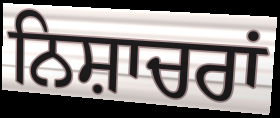
ਨਿਸ਼ਾਚਰਾਂ